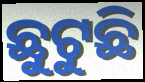
ଛୁଟୁଛି